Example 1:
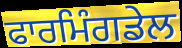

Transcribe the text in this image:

ਫਾਰਮਿੰਗਡੇਲ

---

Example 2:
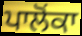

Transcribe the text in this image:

ਪਾਲੋਂਕਾ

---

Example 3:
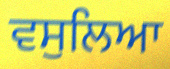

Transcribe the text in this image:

ਵਸੁਲਿਆ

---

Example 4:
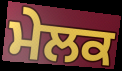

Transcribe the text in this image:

ਮੇਲਕ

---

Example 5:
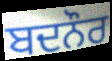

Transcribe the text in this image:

ਬਦਨੌਰ